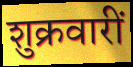
शुक्रवारीं